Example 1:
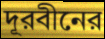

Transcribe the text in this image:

দূরবীনের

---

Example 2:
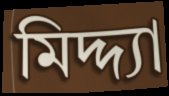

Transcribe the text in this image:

মিদ্দ্যা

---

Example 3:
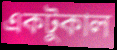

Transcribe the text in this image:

একটুকাল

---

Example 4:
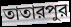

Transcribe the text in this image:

তাতারপুর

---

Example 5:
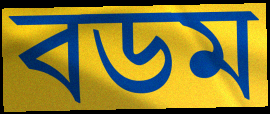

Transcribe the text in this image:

বডম